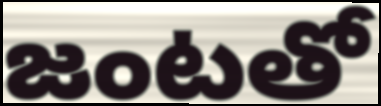
జంటతో